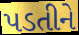
પડતીને